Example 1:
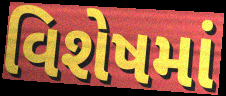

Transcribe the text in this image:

વિશેષમાં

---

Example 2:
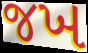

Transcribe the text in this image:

જખ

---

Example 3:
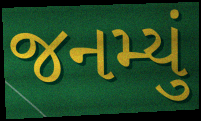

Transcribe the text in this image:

જનમ્યું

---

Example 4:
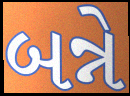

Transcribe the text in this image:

બન્ને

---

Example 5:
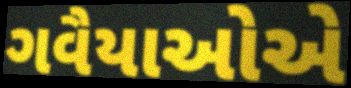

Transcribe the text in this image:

ગવૈયાઓએ